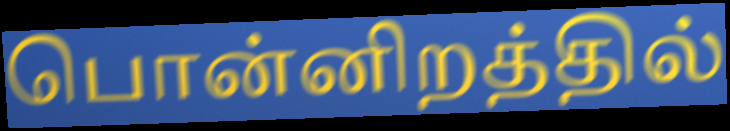
பொன்னிறத்தில்